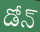
డోన్